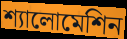
শ্যালোমেশিন